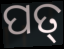
ପତ୍